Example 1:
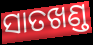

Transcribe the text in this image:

ସାତଖଣ୍ଡ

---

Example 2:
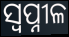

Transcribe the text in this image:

ସ୍ୱପ୍ନୀଳ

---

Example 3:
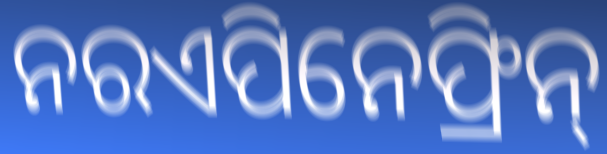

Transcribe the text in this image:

ନରଏପିନେଫ୍ରିନ୍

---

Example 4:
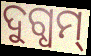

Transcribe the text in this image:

ଦୁଗ୍ଧମ୍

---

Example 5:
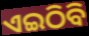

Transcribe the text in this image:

ଏଇଠିବି